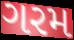
ગરમ